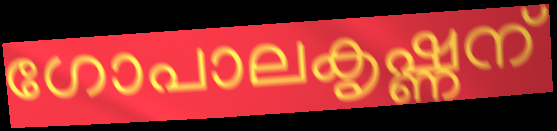
ഗോപാലകൃഷ്ണന്